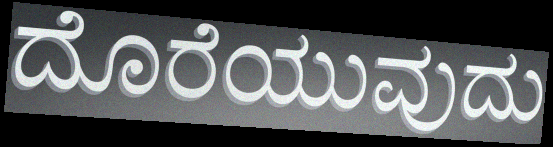
ದೊರೆಯುವುದು